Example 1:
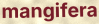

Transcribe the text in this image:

mangifera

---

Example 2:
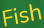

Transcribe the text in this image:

Fish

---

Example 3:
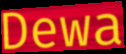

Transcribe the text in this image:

Dewa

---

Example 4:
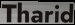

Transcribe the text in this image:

Tharid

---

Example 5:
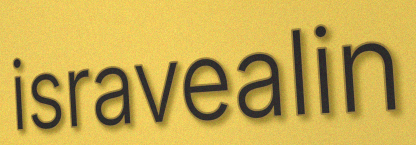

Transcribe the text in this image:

isravealin